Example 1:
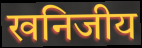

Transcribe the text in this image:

खनिजीय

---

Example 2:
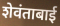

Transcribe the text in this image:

शेवंताबाई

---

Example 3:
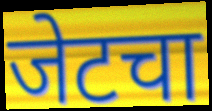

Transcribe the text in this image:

जेटचा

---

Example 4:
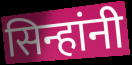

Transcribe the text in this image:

सिन्हांनी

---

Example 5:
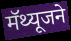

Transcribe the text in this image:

मॅथ्यूजने